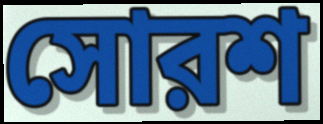
সোরশ